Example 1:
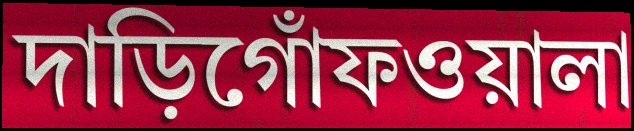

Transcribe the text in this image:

দাড়িগোঁফওয়ালা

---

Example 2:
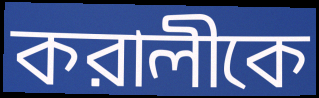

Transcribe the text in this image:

করালীকে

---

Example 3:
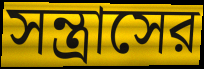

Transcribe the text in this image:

সন্ত্রাসের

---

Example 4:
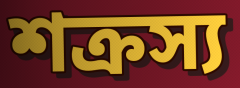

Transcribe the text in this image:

শক্রস্য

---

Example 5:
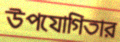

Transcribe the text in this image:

উপযোগিতার